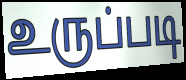
உருப்படி